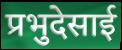
प्रभुदेसाई